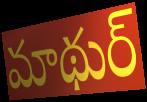
మాథుర్